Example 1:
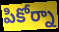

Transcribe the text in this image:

పికోర్నా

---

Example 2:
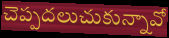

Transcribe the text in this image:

చెప్పదలుచుకున్నావో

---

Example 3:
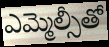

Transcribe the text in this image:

ఎమ్మెల్సీతో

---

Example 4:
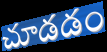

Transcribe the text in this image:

చూడడం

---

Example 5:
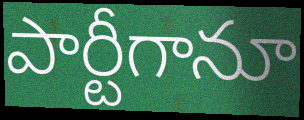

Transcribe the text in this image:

పార్టీగానూ